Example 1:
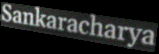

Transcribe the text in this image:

Sankaracharya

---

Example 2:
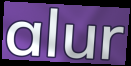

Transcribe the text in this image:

alur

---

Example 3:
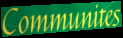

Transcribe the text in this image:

Communites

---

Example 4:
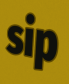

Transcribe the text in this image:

sip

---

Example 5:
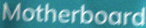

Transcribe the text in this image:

Motherboard